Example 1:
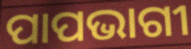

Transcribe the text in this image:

ପାପଭାଗୀ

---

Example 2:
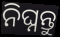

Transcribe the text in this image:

ନିଘ୍ନନ୍ତୁ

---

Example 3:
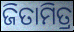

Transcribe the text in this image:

ଜିତାମିତ୍ର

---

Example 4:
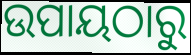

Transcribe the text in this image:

ଉପାୟଠାରୁ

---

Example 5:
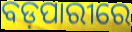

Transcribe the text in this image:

ବଡ଼ପାରୀରେ